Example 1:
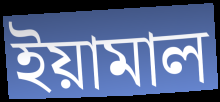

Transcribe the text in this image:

ইয়ামাল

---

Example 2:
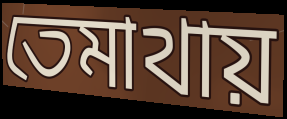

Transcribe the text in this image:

তেমাথায়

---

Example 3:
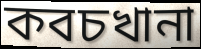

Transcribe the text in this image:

কবচখানা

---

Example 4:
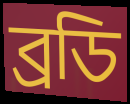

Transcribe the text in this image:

ব্রডি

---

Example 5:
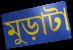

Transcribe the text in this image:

মুড়াটা